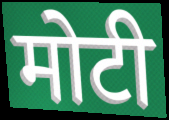
मोटी